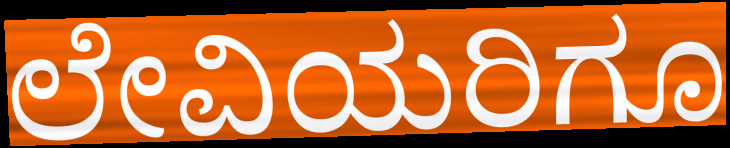
ಲೇವಿಯರಿಗೂ